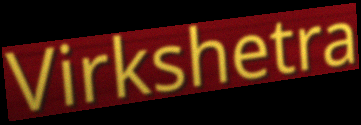
Virkshetra